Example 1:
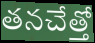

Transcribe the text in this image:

తనచేత్తో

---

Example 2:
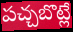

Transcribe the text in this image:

పచ్చబొట్లే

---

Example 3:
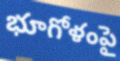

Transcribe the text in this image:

భూగోళంపై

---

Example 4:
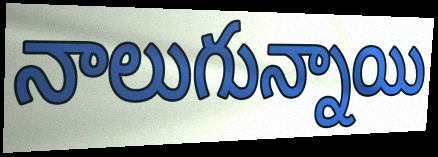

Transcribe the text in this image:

నాలుగున్నాయి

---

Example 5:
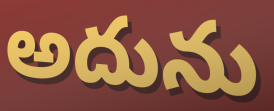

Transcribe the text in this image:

అదును